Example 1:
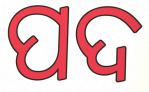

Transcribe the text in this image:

ପଦ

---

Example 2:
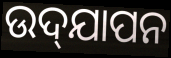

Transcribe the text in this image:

ଉଦ୍‌ଯାପନ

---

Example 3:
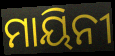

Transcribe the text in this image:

ମାୟିନୀ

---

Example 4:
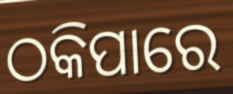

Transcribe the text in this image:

ଠକିପାରେ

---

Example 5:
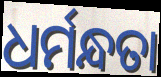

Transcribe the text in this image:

ଧର୍ମନ୍ଧତା